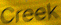
Creek